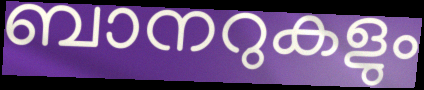
ബാനറുകളും